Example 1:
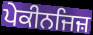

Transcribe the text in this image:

ਪੇਕੀਨਜਿਜ਼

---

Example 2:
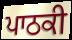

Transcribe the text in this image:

ਪਾਠਕੀ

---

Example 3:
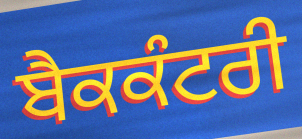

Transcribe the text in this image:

ਬੈਕਕੰਟਰੀ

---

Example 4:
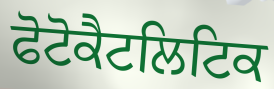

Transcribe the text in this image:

ਫੋਟੋਕੈਟਲਿਟਿਕ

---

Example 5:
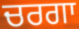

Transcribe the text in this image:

ਚਰਗਾ